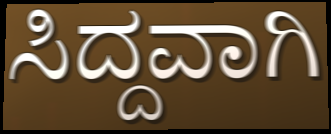
ಸಿದ್ದವಾಗಿ